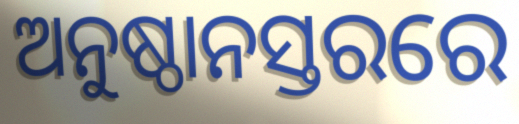
ଅନୁଷ୍ଠାନସ୍ତରରେ